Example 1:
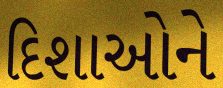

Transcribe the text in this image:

દિશાઓને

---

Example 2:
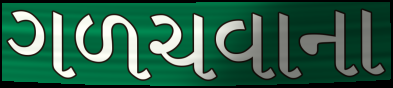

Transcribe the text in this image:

ગળચવાના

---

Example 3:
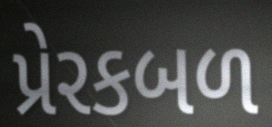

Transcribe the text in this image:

પ્રેરકબળ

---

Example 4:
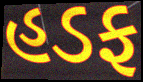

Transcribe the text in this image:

હડફ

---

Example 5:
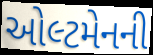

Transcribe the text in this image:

ઓલ્ટમેનની